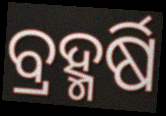
ବ୍ରହ୍ମର୍ଷି